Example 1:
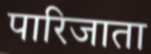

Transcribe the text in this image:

पारिजाता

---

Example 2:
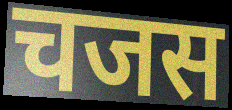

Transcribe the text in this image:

चजस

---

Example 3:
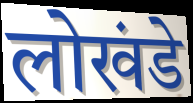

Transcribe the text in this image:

लोखंडे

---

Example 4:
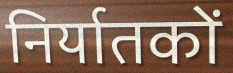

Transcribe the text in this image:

निर्यातकों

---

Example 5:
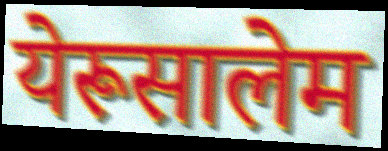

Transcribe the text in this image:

येरूसालेम